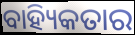
ବାହ୍ୟିକତାର